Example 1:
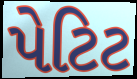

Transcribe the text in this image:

પેટિટ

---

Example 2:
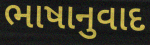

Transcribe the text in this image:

ભાષાનુવાદ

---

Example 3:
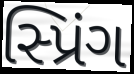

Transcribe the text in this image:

સ્પ્રિંગ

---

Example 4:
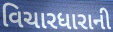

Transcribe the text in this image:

વિચારધારાની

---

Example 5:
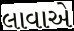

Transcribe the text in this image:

લાવાએ